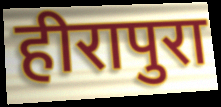
हीरापुरा